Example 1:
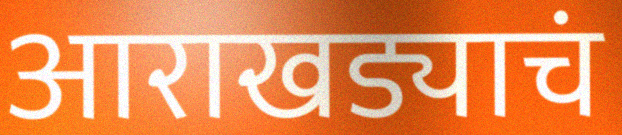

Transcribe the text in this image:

आराखड्याचं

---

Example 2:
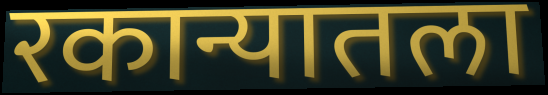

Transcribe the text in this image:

रकान्यातला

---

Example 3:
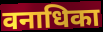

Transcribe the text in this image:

वनाधिका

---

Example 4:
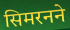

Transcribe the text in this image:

सिमरनने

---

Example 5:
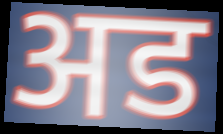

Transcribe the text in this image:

अड